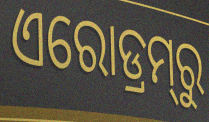
ଏରୋଡ୍ରମ୍‍ରୁ